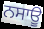
ਨਸਾਊ